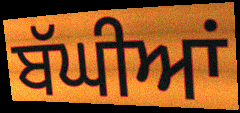
ਬੱਘੀਆਂ